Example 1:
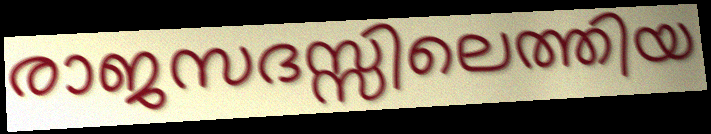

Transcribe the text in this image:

രാജസദസ്സിലെത്തിയ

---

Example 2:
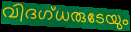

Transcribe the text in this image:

വിദഗ്ധരുടേയും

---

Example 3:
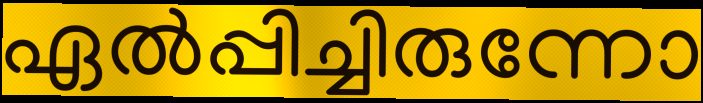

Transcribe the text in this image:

ഏൽപ്പിച്ചിരുന്നോ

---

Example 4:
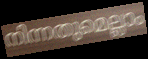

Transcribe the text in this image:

നിന്നതുമെല്ലാം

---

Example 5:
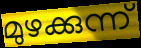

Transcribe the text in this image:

മുഴക്കുന്ന്